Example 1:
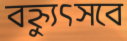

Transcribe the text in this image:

বহ্ন্যুৎসবে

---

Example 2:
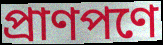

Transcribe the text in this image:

প্রাণপণে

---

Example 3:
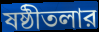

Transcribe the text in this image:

ষষ্ঠীতলার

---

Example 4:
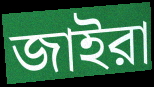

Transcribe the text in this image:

জাইরা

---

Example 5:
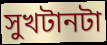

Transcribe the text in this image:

সুখটানটা